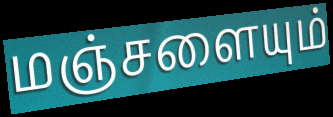
மஞ்சளையும்